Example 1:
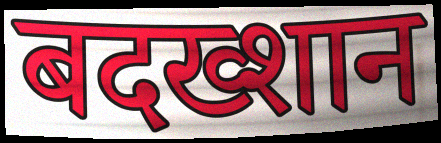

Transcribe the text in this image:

बदख्शान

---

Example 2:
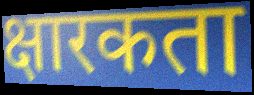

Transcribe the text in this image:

क्षारकता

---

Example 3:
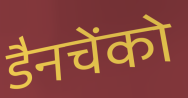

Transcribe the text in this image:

डैनचेंको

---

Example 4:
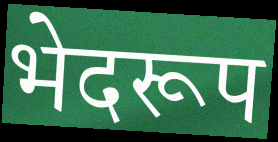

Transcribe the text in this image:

भेदरूप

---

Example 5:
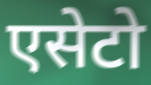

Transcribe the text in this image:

एसेटो